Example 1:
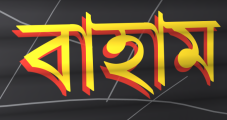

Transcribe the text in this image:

বাহাম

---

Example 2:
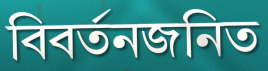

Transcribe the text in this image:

বিবর্তনজনিত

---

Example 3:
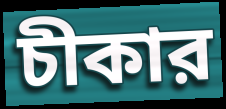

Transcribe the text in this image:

চীকার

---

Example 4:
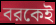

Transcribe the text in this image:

বরকেই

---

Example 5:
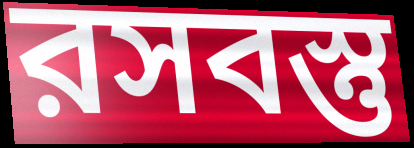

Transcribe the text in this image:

রসবস্তু